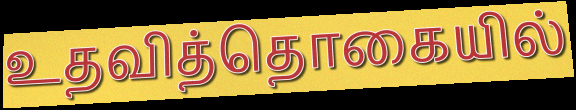
உதவித்தொகையில்